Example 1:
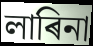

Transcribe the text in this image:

লাৰিনা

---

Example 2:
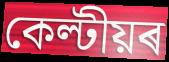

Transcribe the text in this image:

কেল্টীয়ৰ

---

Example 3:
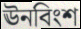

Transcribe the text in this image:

ঊনবিংশ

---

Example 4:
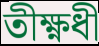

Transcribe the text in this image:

তীক্ষ্ণধী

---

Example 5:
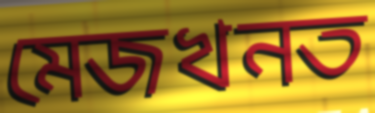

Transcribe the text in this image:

মেজখনত